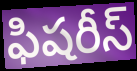
ఫిషరీస్